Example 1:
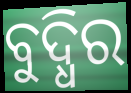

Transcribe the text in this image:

ବୁଦ୍ଧିର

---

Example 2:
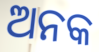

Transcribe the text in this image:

ଅନକ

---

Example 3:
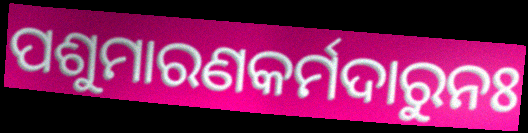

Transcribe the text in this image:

ପଶୁମାରଣକର୍ମଦାରୁନଃ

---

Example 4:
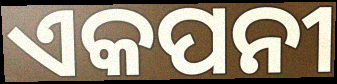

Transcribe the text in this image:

ଏକପନୀ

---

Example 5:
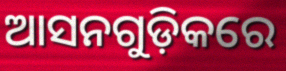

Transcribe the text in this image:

ଆସନଗୁଡ଼ିକରେ